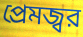
প্রেমজ্বর